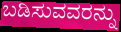
ಬಡಿಸುವವರನ್ನು